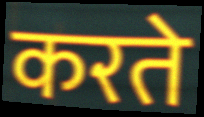
करते